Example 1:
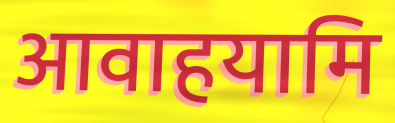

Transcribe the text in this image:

आवाहयामि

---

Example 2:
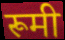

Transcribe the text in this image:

रूमी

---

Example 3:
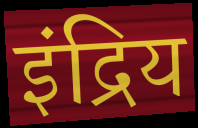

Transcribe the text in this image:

इंद्रिय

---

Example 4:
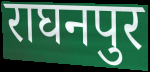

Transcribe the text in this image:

राघनपुर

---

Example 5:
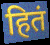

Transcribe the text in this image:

हितं